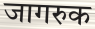
जागरुक